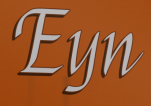
Eyn